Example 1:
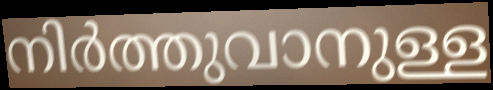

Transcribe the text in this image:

നിർത്തുവാനുള്ള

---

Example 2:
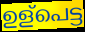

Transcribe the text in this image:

ഉള്പെട്ട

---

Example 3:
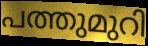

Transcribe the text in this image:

പത്തുമുറി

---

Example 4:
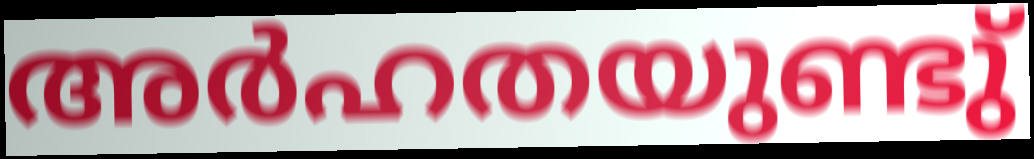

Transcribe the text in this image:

അർഹതയുണ്ടു്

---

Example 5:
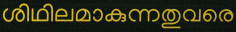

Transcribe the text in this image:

ശിഥിലമാകുന്നതുവരെ